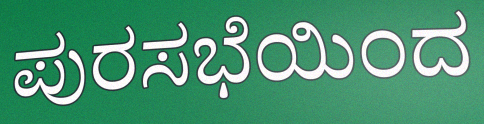
ಪುರಸಭೆಯಿಂದ